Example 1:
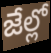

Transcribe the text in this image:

జేల్లో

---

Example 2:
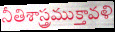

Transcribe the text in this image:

నీతిశాస్త్రముక్తావళి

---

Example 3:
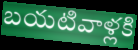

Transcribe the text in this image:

బయటివాళ్లకి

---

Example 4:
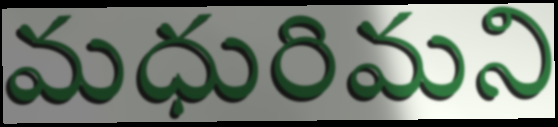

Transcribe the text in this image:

మధురిమని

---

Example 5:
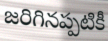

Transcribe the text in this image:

జరిగినప్పటికీ